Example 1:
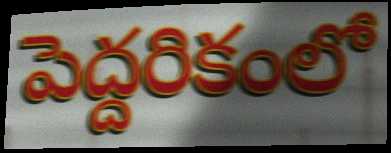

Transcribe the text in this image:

పెద్దరికంలో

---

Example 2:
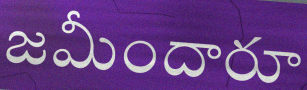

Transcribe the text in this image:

జమీందారూ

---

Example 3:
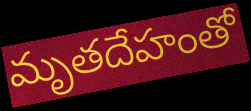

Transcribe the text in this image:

మృతదేహంతో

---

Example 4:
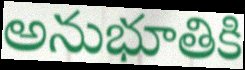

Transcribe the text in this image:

అనుభూతికి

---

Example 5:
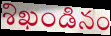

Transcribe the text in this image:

శిఖండినం